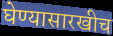
घेण्यासारखीच